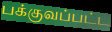
பக்குவப்பட்ட